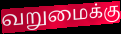
வறுமைக்கு